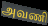
அவணி